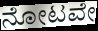
ನೋಟವೇ